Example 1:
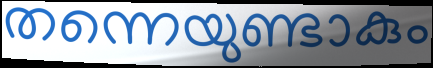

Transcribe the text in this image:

തന്നെയുണ്ടാകും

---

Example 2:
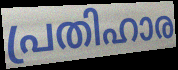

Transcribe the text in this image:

പ്രതിഹാര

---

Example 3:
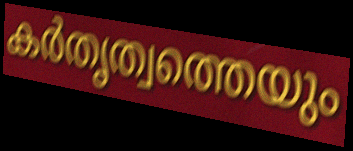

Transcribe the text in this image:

കർതൃത്വത്തെയും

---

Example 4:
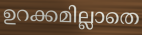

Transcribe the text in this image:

ഉറക്കമില്ലാതെ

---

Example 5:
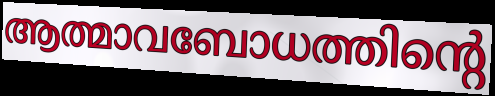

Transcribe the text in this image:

ആത്മാവബോധത്തിന്റെ